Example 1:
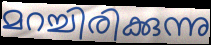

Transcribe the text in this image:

മറച്ചിരിക്കുന്നു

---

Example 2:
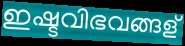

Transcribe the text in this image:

ഇഷ്ടവിഭവങ്ങള്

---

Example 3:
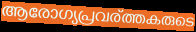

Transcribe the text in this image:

ആരോഗ്യപ്രവര്ത്തകരുടെ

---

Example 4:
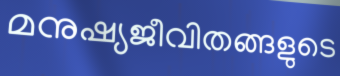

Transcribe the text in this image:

മനുഷ്യജീവിതങ്ങളുടെ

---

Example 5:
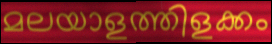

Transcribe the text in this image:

മലയാളത്തിളക്കം